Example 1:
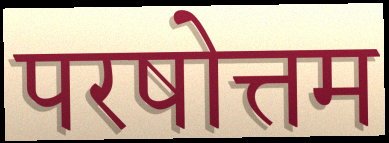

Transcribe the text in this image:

परषोत्तम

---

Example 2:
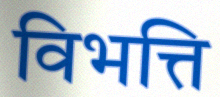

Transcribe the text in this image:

विभत्ति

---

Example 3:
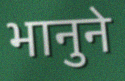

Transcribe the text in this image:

भानुने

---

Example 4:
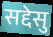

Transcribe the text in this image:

सद्देसु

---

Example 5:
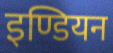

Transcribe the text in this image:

इण्डियन